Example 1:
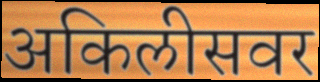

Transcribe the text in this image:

अकिलीसवर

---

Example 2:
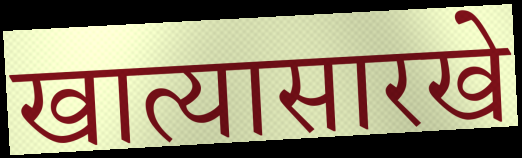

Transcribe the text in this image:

खात्यासारखे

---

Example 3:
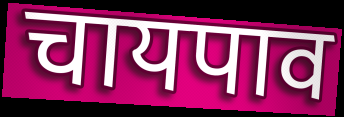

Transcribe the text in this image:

चायपाव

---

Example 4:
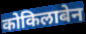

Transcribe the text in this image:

कोकिलाबेन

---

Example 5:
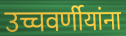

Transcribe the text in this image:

उच्चवर्णीयांना